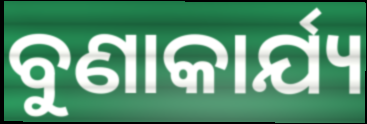
ବୁଣାକାର୍ଯ୍ୟ